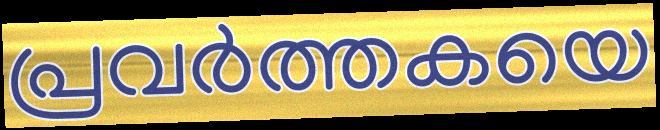
പ്രവർത്തകയെ